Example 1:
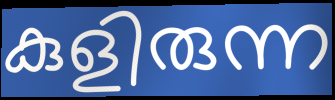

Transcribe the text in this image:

കുളിരുന്ന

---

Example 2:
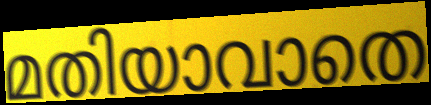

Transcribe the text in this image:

മതിയാവാതെ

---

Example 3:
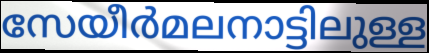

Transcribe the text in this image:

സേയീർമലനാട്ടിലുള്ള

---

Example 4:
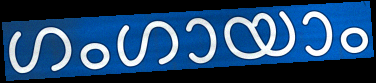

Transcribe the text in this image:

ഗംഗായാം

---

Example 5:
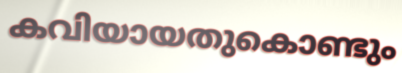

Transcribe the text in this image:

കവിയായതുകൊണ്ടും